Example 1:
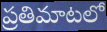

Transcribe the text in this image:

ప్రతిమాటలో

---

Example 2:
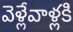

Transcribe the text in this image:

వెళ్లేవాళ్లకి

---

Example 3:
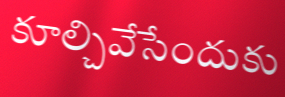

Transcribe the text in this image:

కూల్చివేసేందుకు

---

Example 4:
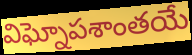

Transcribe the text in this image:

విఘ్నోపశాంతయే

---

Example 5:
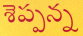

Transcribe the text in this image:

శెప్పన్న